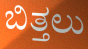
ಬಿತ್ತಲು